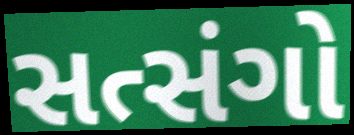
સત્સંગો